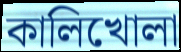
কালিখোলা